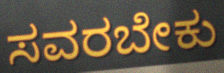
ಸವರಬೇಕು